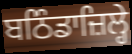
ਬਠਿੰਡਾਜ਼ਿਲ੍ਹੇ